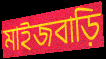
মাইজবাড়ি